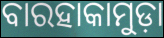
ବାରହାକାମୁଡ଼ା